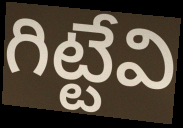
గిట్టేవి